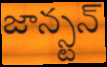
జాన్స్టన్